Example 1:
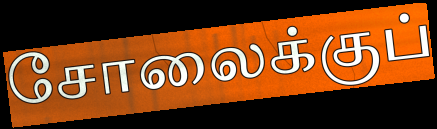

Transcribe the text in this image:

சோலைக்குப்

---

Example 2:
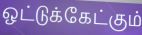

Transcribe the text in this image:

ஒட்டுக்கேட்கும்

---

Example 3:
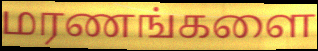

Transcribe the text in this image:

மரணங்களை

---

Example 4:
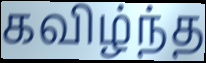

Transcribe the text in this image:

கவிழ்ந்த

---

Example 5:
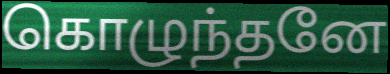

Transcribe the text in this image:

கொழுந்தனே